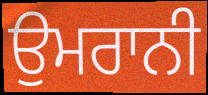
ਉਮਰਾਨੀ